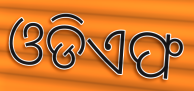
ଓଡିଏଫ